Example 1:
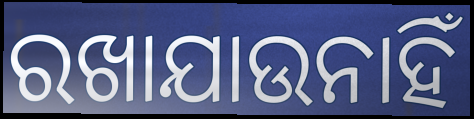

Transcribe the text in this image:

ରଖାଯାଉନାହିଁ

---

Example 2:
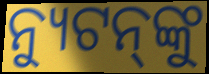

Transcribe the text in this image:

ନ୍ୟୁଟନ୍‌ଙ୍କୁ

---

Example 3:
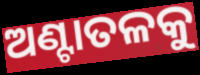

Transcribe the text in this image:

ଅଣ୍ଟାତଳକୁ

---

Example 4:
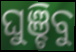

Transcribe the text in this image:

ଘୁଞ୍ଚିବୁ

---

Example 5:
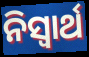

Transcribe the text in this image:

ନିସ୍ୱାର୍ଥ